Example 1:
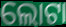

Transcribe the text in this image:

ଲୋଟା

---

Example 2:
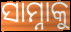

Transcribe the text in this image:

ସାମ୍ନାକୁ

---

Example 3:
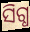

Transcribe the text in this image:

ସିଗ୍ଧ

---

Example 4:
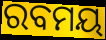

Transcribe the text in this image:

ରବମୟ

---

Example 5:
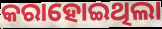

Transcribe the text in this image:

କରାହୋଇଥିଲା